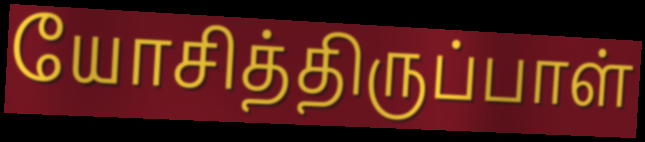
யோசித்திருப்பாள்